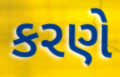
કરણે